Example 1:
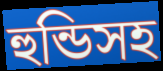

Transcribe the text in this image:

হুন্ডিসহ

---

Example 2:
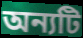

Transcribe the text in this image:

অন্যটি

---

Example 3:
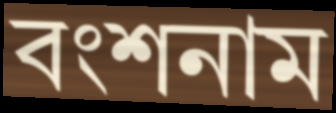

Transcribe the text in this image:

বংশনাম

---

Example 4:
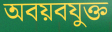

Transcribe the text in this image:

অবয়বযুক্ত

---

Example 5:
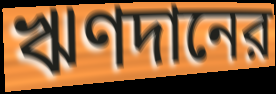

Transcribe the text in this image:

ঋণদানের